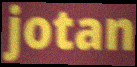
jotan